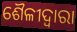
ଶୈଳୀଦ୍ୱାରା